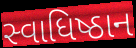
સ્વાધિષ્ઠાન